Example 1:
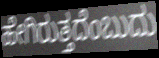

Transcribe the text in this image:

ಹೇಗಿರುತ್ತದೆಂಬುದು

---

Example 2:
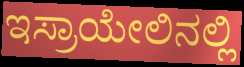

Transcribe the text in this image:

ಇಸ್ರಾಯೇಲಿನಲ್ಲಿ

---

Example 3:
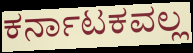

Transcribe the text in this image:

ಕರ್ನಾಟಕವಲ್ಲ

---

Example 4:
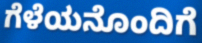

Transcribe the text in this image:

ಗೆಳೆಯನೊಂದಿಗೆ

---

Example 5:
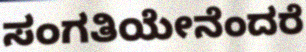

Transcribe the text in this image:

ಸಂಗತಿಯೇನೆಂದರೆ